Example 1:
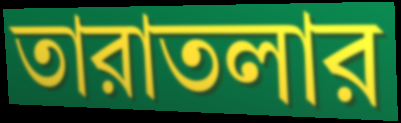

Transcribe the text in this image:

তারাতলার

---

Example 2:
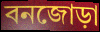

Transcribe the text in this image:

বনজোড়া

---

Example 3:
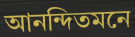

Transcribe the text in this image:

আনন্দিতমনে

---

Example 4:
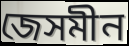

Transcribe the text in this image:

জেসমীন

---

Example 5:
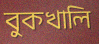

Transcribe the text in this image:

বুকখালি